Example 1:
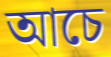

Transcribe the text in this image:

আচে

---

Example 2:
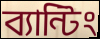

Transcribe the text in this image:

ব্যান্টিং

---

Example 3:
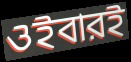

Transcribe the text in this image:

ওইবারই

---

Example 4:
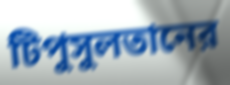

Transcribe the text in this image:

টিপুসুলতানের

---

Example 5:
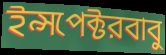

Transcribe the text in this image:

ইন্সপেক্টরবাবু